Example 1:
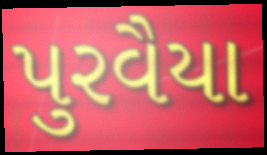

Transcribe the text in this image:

પુરવૈયા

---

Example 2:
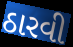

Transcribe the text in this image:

ઠારવી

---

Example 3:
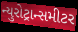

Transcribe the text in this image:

ન્યુરોટ્રાન્સમીટર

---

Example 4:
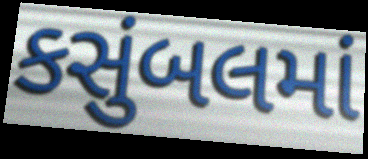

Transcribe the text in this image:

કસુંબલમાં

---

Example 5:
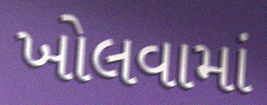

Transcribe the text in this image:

ખોલવામાં